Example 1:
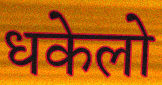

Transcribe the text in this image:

धकेलो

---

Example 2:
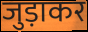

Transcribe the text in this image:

जुड़ाकर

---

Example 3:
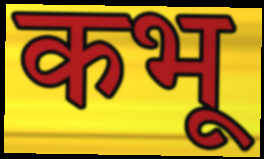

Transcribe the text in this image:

कभू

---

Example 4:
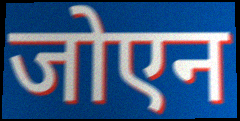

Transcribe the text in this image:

जोएन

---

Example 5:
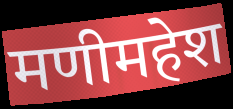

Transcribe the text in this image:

मणीमहेश